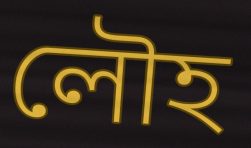
লৌহ